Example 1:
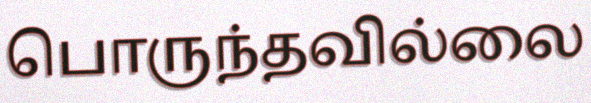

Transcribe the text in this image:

பொருந்தவில்லை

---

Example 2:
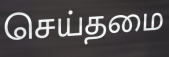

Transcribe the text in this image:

செய்தமை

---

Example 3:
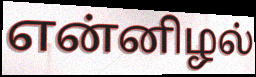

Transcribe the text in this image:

என்னிழல்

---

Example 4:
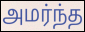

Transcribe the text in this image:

அமர்ந்த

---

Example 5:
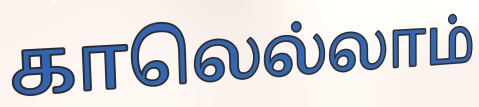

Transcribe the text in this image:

காலெல்லாம்